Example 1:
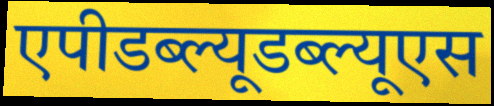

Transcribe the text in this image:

एपीडब्ल्यूडब्ल्यूएस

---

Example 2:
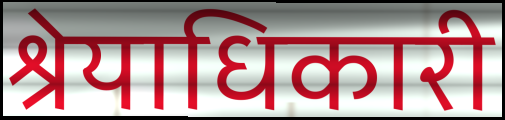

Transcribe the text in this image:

श्रेयाधिकारी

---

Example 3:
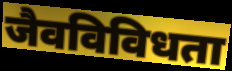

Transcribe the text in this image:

जैवविविधता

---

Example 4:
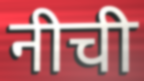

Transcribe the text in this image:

नीची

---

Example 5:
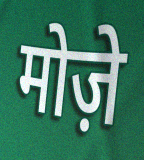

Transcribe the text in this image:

मोज़े